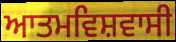
ਆਤਮਵਿਸ਼ਵਾਸੀ